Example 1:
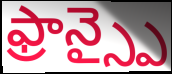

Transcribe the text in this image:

ఫ్రాన్స్పై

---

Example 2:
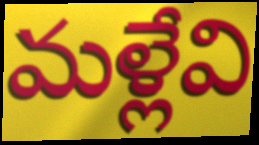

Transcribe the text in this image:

మళ్లేవి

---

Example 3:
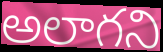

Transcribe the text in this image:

అలాగని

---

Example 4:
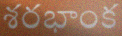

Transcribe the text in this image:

శరభాంక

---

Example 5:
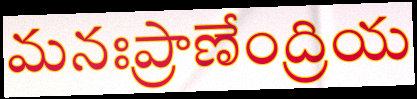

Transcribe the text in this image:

మనఃప్రాణేంద్రియ